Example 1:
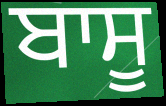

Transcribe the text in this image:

ਬਾਸੂ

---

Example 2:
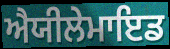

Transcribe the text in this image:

ਐਯੀਲੇਮਾਇਡ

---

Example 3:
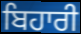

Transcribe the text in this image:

ਬਿਹਾਰੀ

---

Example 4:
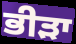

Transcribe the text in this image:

ਭੀੜਾ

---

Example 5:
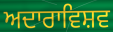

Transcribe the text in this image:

ਅਦਾਰਾਵਿਸ਼ਵ